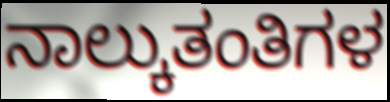
ನಾಲ್ಕುತಂತಿಗಳ